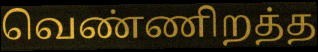
வெண்ணிறத்த